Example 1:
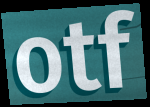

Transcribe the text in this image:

otf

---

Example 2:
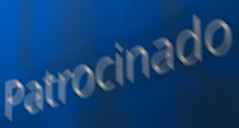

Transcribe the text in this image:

Patrocinado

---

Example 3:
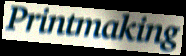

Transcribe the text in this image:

Printmaking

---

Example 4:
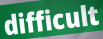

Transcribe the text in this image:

difficult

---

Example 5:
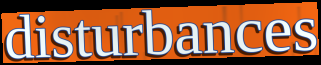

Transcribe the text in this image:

disturbances